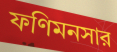
ফণিমনসার